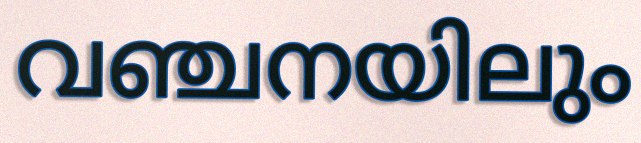
വഞ്ചനയിലും